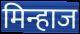
मिन्हाज